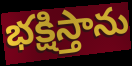
భక్షిస్తాను